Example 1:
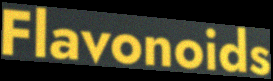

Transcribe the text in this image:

Flavonoids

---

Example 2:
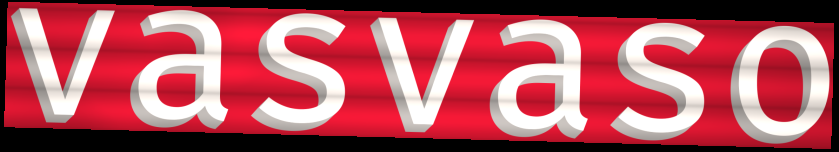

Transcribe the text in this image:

vasvaso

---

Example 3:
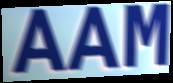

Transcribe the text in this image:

AAM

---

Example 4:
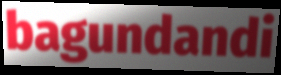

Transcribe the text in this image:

bagundandi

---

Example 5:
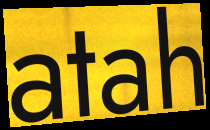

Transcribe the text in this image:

atah